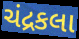
ચંદ્રકલા